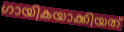
ഗായികയാക്കിയത്